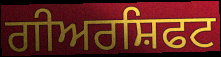
ਗੀਅਰਸ਼ਿਫਟ